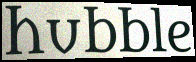
hubble